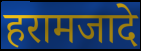
हरामजादे